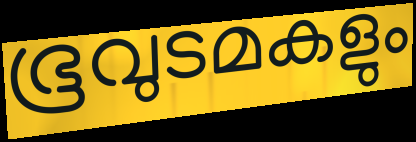
ഭൂവുടമകളും